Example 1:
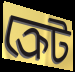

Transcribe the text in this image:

ক্রেট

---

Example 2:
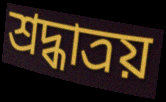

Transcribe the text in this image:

শ্রদ্ধাত্রয়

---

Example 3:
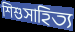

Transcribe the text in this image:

শিশুসাহিত্য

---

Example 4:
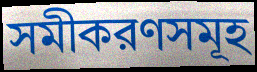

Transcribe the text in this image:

সমীকরণসমূহ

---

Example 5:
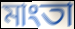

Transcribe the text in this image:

মাংতা